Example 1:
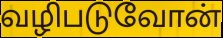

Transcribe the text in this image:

வழிபடுவோன்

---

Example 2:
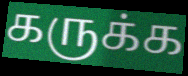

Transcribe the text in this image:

கருக்க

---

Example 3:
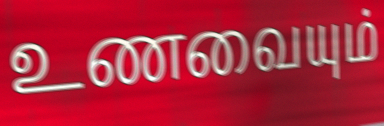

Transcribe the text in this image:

உணவையும்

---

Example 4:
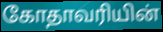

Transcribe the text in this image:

கோதாவரியின்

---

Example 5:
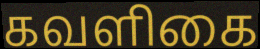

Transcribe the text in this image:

கவளிகை